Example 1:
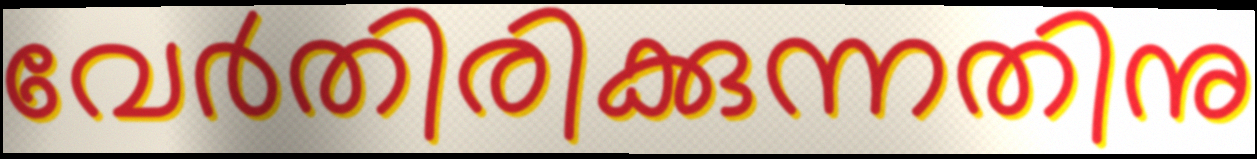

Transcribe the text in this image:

വേർതിരിക്കുന്നതിനു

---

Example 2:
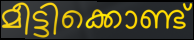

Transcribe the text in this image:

മീട്ടിക്കൊണ്ട്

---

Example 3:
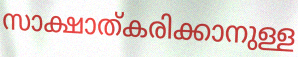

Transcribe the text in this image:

സാക്ഷാത്കരിക്കാനുള്ള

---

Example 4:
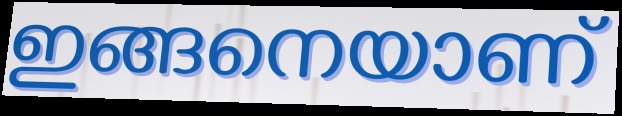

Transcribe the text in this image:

ഇങ്ങനെയാണ്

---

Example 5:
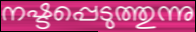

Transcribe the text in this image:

നഷ്ടപ്പെടുത്തുന്നു